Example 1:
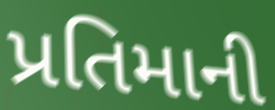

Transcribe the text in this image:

પ્રતિમાની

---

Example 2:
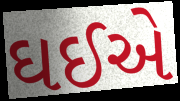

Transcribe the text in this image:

ઘઈએ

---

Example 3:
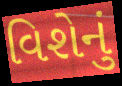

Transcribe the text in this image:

વિશેનું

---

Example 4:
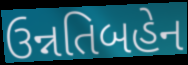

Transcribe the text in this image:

ઉન્નતિબહેન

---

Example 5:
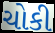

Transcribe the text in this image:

ચોકી